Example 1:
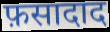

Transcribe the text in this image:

फ़सादाद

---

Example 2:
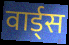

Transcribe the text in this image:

वार्ड्स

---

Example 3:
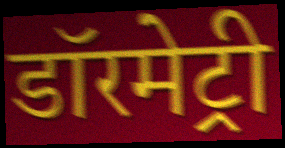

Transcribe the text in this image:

डॉरमेट्री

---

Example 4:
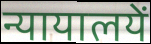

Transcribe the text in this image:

न्यायालयें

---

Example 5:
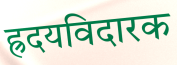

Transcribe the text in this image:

ह्रदयविदारक